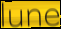
lune